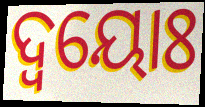
ଦ୍ବୟୋଃ